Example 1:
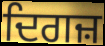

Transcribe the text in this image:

ਦਿਗਜ਼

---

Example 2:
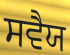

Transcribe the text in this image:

ਸਵੈਯ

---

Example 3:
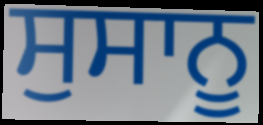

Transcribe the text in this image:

ਸੁਸਾਨੂ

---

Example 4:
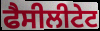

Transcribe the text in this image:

ਫੈਸੀਲੀਟੇਟ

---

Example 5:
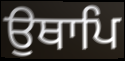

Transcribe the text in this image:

ਉਥਾਪਿ